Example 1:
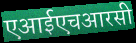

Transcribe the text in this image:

एआईएचआरसी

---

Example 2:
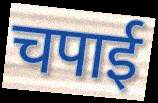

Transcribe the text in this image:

चपाई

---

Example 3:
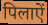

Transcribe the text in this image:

पिलाऐं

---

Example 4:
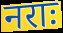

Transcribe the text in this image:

नराः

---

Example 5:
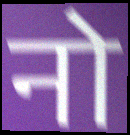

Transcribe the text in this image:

नो